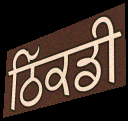
ਠਿੱਕਡੀ